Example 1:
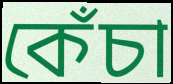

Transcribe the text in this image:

কেঁচা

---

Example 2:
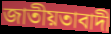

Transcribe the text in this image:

জাতীয়তাবাদী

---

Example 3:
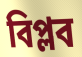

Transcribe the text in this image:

বিপ্লব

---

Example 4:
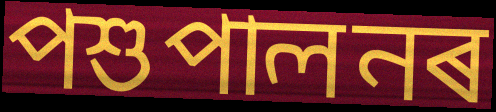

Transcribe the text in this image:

পশুপালনৰ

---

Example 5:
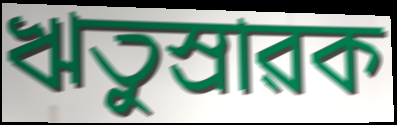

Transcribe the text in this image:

ঋতুস্ৰাৱক